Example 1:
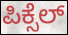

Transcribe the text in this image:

ಪಿಕ್ಸೆಲ್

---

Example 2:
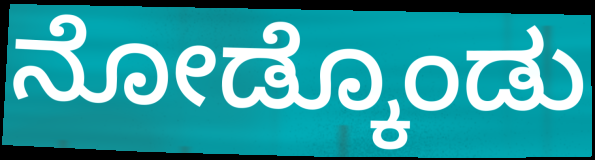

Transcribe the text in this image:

ನೋಡ್ಕೊಂಡು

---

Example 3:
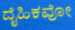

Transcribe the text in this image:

ದೈಹಿಕವೋ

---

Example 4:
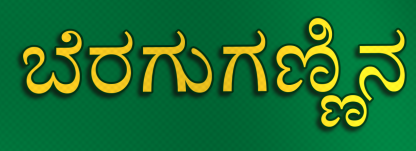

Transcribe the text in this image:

ಬೆರಗುಗಣ್ಣಿನ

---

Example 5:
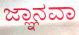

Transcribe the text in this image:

ಜ್ಞಾನವಾ